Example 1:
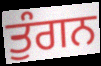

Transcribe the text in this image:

ਤੁੰਗਨ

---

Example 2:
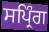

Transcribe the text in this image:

ਸਪ੍ਰਿੰਗ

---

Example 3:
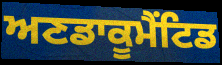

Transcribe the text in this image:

ਅਣਡਾਕੂਮੈਂਟਿਡ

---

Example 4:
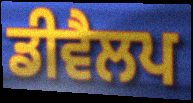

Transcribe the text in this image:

ਡੀਵੈਲਪ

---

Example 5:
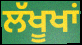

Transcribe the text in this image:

ਲੱਖੂਖਾਂ